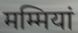
मम्मियां